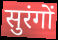
सुरंगों